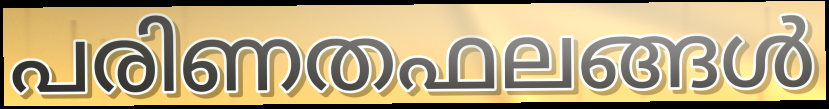
പരിണതഫലങ്ങൾ